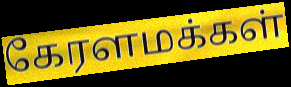
கேரளமக்கள்